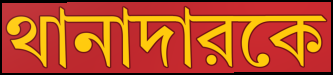
থানাদারকে